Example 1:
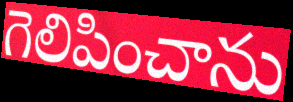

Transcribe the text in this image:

గెలిపించాను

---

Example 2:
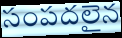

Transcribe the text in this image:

సంపదలైన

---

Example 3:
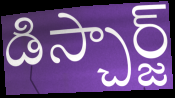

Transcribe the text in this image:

డిస్చార్జ్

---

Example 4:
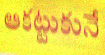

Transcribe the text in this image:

ఆకట్టుకునే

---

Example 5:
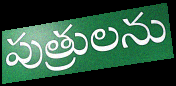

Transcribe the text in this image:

పుత్రులను